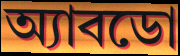
অ্যাবডো